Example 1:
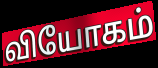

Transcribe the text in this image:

வியோகம்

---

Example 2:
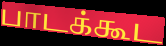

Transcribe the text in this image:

பாடக்கூட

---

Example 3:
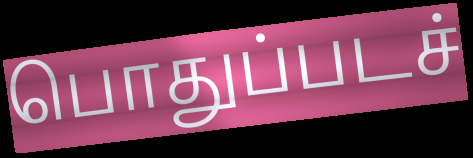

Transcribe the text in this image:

பொதுப்படச்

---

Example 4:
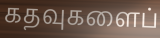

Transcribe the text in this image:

கதவுகளைப்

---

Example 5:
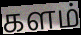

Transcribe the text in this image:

களம்